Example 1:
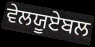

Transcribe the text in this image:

ਵੇਲਯੂਏਬਲ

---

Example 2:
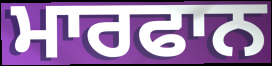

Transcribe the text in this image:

ਮਾਰਫਾਨ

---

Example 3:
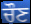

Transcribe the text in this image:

ਚੌਣ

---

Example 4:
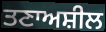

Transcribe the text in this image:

ਤਣਾਅਸ਼ੀਲ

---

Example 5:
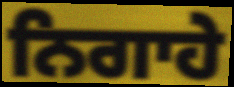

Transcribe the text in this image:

ਨਿਗਾਹੇ